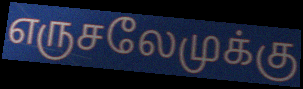
எருசலேமுக்கு